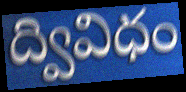
ద్వివిధం